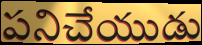
పనిచేయుడు